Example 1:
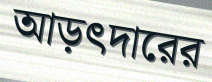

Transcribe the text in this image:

আড়ৎদারের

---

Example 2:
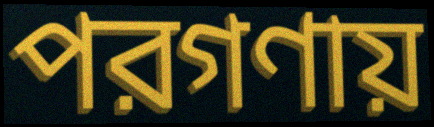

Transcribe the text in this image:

পরগণায়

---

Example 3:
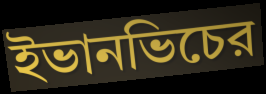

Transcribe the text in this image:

ইভানভিচের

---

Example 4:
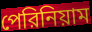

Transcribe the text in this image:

পেরিনিয়াম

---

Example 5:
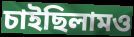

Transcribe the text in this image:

চাইছিলামও